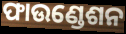
ଫାଉଣ୍ଡେଶନ